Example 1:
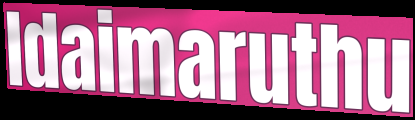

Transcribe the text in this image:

Idaimaruthu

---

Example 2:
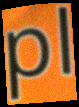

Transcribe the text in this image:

pl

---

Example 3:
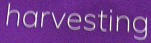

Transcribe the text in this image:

harvesting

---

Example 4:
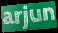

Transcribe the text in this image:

arjun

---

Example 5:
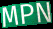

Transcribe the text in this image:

MPN